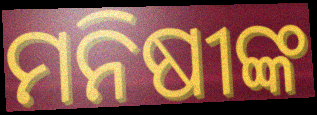
ମନିଷୀଙ୍କ